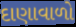
દાણાવાળો